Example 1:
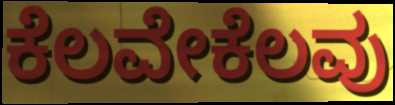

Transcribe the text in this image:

ಕೆಲವೇಕೆಲವು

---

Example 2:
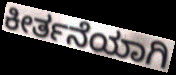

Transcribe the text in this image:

ಕೀರ್ತನೆಯಾಗಿ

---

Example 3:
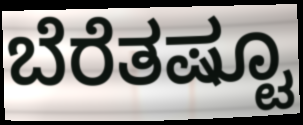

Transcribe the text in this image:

ಬೆರೆತಷ್ಟೂ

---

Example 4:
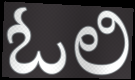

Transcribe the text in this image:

ಓಲಿ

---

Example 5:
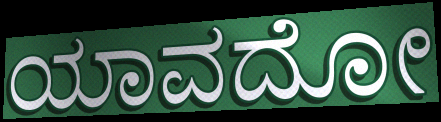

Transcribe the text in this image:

ಯಾವದೋ